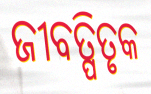
ଜୀବତ୍ପିତୃକ